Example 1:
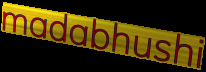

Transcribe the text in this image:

madabhushi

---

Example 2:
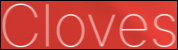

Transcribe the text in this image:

Cloves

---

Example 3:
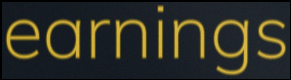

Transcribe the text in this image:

earnings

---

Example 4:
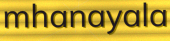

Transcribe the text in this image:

mhanayala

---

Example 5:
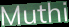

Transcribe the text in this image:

Muthi